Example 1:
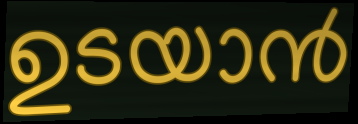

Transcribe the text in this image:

ഉടയാൻ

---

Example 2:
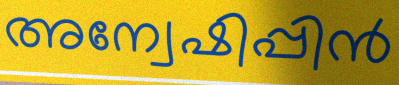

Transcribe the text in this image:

അന്വേഷിപ്പിൻ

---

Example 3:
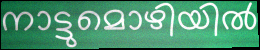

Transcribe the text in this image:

നാട്ടുമൊഴിയിൽ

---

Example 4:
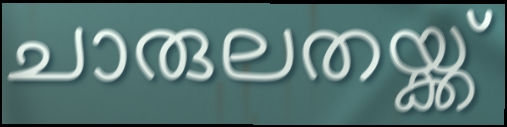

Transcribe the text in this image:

ചാരുലതയ്ക്ക്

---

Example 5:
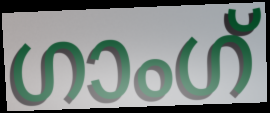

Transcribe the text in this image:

ഗാംഗ്